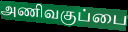
அணிவகுப்பை